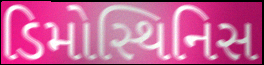
ડિમોસ્થિનિસ